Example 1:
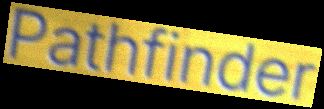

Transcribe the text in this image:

Pathfinder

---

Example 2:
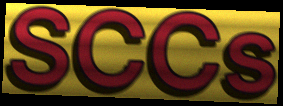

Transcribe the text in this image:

SCCs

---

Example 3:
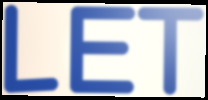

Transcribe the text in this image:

LET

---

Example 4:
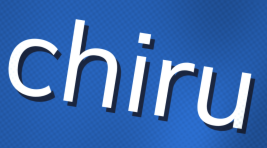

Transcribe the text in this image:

chiru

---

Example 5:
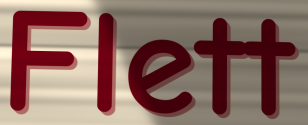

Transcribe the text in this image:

Flett